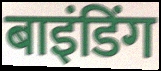
बाइंडिंग